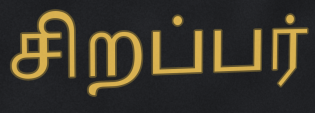
சிறப்பர்